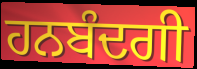
ਹਨਬੰਦਗੀ